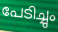
പേടിച്ചും